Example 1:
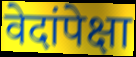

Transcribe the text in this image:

वेदांपेक्षा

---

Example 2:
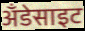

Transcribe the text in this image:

अँडेसाइट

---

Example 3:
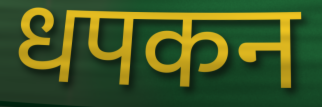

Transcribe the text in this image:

धपकन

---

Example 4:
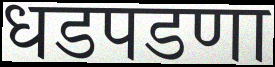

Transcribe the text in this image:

धडपडणा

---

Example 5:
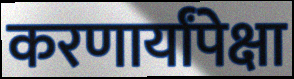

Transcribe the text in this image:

करणार्यांपेक्षा